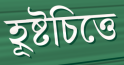
হূষ্টচিত্তে